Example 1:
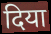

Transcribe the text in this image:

दिया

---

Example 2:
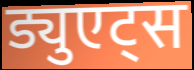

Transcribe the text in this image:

ड्युएट्स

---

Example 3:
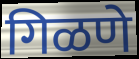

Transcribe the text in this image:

गिळणे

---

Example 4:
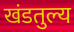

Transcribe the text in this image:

खंडतुल्य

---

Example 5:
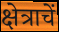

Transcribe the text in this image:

क्षेत्राचें